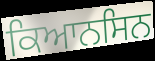
ਕਿਆਨਸਿਨ